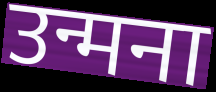
उन्मना